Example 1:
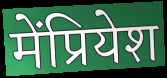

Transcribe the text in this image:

मेंप्रियेश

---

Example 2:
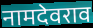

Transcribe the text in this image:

नामदेवराव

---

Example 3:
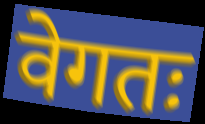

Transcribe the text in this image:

वेगतः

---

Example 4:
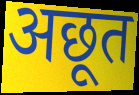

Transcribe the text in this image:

अछूत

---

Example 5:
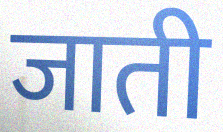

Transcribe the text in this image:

जाती